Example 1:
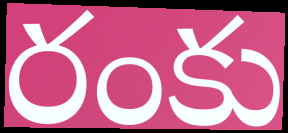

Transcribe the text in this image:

రంకు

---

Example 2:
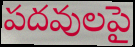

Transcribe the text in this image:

పదవులపై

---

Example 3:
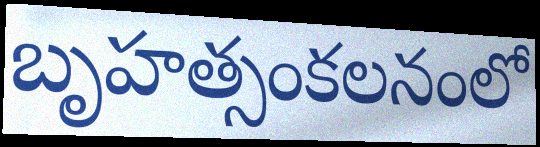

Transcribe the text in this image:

బృహత్సంకలనంలో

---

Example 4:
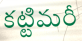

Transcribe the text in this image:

కట్టిమరీ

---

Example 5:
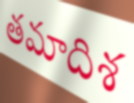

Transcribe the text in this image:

తమాదిశ